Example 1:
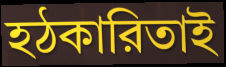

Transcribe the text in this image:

হঠকারিতাই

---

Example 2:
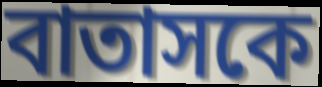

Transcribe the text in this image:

বাতাসকে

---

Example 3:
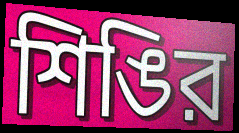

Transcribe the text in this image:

শিঙির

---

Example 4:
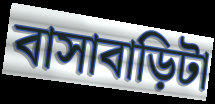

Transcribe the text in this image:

বাসাবাড়িটা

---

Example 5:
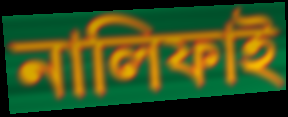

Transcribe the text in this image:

নালিফাই